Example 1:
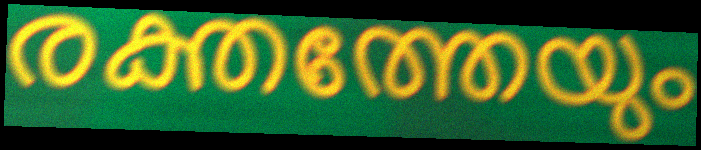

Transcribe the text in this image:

രക്തത്തേയും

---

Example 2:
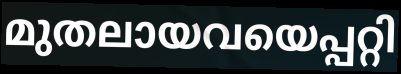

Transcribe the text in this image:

മുതലായവയെപ്പറ്റി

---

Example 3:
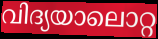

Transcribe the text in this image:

വിദ്യയാലൊറ്റ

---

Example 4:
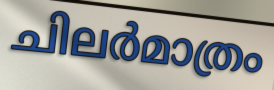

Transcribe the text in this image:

ചിലർമാത്രം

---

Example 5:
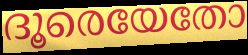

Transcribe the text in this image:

ദൂരെയേതോ